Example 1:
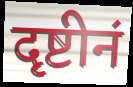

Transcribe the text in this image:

दृष्टीनं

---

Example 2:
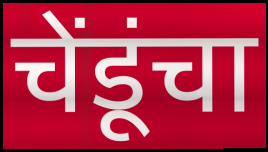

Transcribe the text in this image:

चेंडूंचा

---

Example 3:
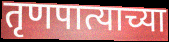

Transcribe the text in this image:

तृणपात्याच्या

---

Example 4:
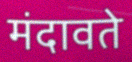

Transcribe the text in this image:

मंदावते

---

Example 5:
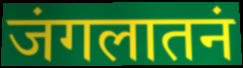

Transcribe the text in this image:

जंगलातनं